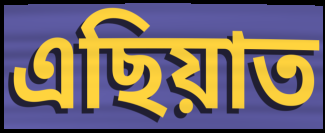
এছিয়াত